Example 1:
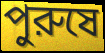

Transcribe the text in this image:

পুরুষে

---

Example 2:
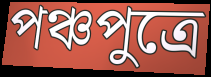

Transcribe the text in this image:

পঞ্চপুত্রে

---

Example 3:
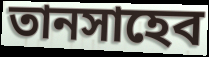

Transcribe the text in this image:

তানসাহেব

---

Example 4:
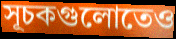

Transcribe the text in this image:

সূচকগুলোতেও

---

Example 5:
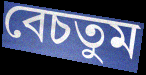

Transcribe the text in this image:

বেচতুম